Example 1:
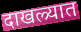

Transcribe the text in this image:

दाखल्यात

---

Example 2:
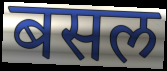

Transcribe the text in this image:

बसल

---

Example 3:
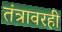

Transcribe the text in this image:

तंत्रावरही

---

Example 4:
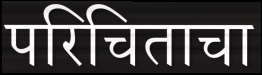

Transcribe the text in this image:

परिचिताचा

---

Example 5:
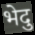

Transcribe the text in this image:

भेदु